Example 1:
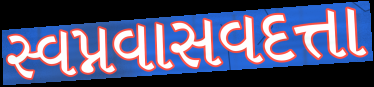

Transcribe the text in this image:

સ્વપ્નવાસવદત્તા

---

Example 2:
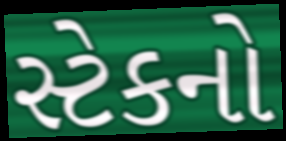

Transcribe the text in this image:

સ્ટેકનો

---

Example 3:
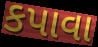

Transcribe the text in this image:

કપાવા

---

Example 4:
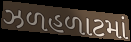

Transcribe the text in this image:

ઝળહળાટમાં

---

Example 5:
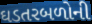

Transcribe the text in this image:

ઘડતરબળોની